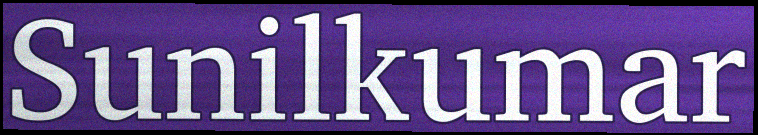
Sunilkumar